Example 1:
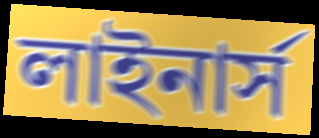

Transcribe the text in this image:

লাইনার্স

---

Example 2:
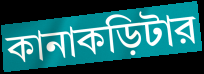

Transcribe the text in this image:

কানাকড়িটার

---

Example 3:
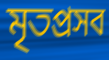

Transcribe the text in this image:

মৃতপ্রসব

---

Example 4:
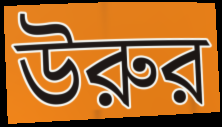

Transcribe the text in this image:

উরুর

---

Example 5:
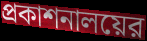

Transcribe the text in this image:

প্রকাশনালয়ের